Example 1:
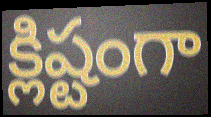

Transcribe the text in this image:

క్లిష్టంగా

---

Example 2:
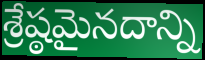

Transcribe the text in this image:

శ్రేష్ఠమైనదాన్ని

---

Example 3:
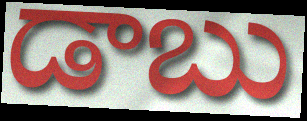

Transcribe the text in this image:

డాబు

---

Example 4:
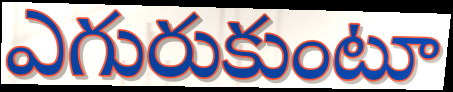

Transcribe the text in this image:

ఎగురుకుంటూ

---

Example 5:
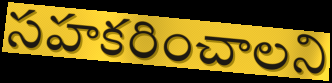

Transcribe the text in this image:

సహకరించాలని